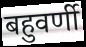
बहुवर्णी